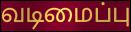
வடிமைப்பு